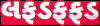
લફડફફડ